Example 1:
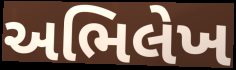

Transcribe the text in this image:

અભિલેખ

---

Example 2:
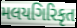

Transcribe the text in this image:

મલયગિરિકૃત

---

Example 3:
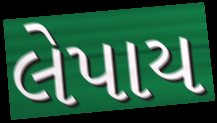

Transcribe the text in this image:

લેપાય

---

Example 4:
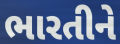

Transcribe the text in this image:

ભારતીને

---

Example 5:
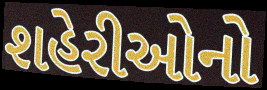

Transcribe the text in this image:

શહેરીઓનો